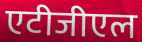
एटीजीएल